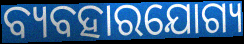
ବ୍ୟବହାରଯୋଗ୍ୟ